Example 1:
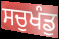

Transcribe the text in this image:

ਸਚੁਖੰਡੁ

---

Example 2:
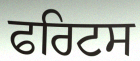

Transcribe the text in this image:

ਫਰਿਟਸ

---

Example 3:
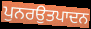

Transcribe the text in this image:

ਪੁਨਰਉਤਪਾਦਨ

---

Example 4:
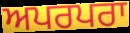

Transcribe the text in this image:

ਅਪਰਪਰਾ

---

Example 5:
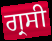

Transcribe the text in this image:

ਗ੍ਰਸੀ